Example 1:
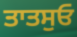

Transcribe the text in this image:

ਤਾਤਸੁਓ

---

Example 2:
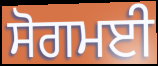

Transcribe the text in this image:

ਸੋਗਮਈ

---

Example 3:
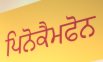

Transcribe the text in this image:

ਪਿਨੋਕੈਮਫੋਨ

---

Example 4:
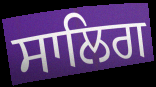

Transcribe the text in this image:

ਸਾਲਿਗ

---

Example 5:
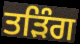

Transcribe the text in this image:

ਤੜਿੰਗ